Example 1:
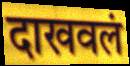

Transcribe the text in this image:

दाखवलं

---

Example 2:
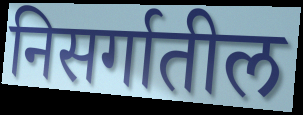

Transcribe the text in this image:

निसर्गातील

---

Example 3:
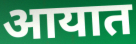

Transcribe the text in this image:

आयात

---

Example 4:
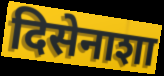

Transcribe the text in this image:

दिसेनाशा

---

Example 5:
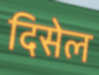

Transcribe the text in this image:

दिसेल